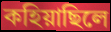
কহিয়াছিলে